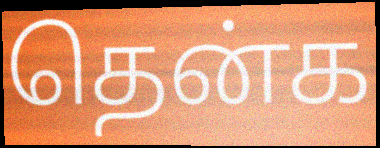
தென்க